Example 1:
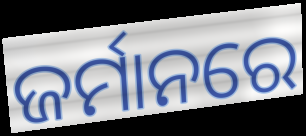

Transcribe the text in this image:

ଜର୍ମାନରେ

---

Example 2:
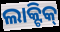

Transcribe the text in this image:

ଲାକ୍ଟିକ୍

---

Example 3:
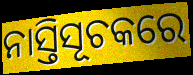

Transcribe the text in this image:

ନାସ୍ତିସୂଚକରେ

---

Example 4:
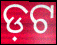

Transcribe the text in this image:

ଡ଼ଟ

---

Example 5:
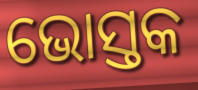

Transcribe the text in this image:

ଭୋସ୍ତକ